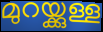
മുറയ്ക്കുള്ള